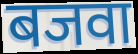
बजवा